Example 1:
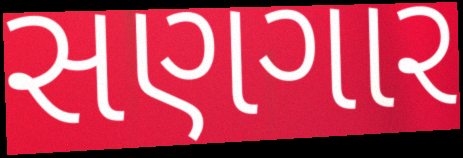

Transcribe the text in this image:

સણગાર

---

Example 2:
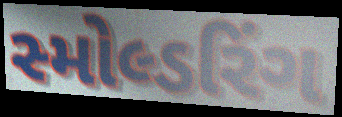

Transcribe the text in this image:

સ્મોલ્ડરિંગ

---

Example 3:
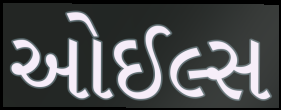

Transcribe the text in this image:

ઓઈલ્સ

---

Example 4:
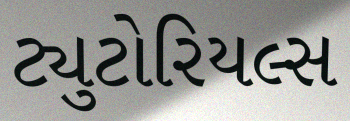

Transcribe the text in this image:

ટ્યુટોરિયલ્સ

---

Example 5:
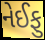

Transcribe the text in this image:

નેઈફુ